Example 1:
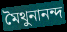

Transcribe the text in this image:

মৈথুনানন্দ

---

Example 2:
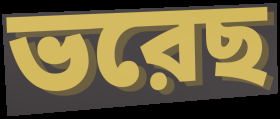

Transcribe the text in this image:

ভরেছ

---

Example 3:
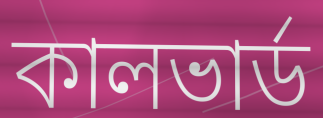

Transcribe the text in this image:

কালভার্ড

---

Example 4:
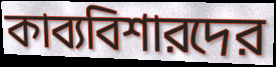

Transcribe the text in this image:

কাব্যবিশারদের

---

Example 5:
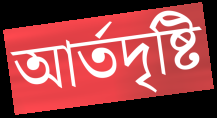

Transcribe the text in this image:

আর্তদৃষ্টি